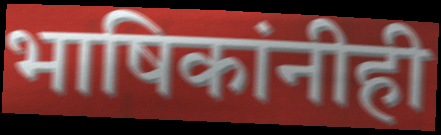
भाषिकांनीही